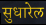
सुधारेल